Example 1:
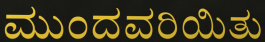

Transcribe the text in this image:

ಮುಂದವರಿಯಿತು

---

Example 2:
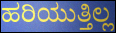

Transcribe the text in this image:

ಹರಿಯುತ್ತಿಲ್ಲ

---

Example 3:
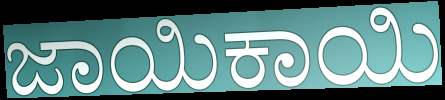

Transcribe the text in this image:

ಜಾಯಿಕಾಯಿ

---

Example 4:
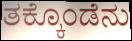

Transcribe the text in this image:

ತಕ್ಕೊಂಡೆನು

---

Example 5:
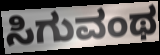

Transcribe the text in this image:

ಸಿಗುವಂಥ